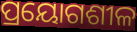
ପ୍ରୟୋଗଶୀଳ